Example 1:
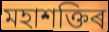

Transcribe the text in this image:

মহাশক্তিৰ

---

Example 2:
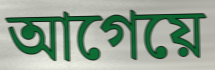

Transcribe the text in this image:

আগেয়ে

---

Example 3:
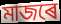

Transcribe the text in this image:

মাজৰে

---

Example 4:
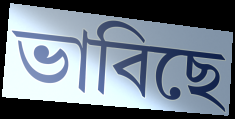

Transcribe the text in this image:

ভাবিছে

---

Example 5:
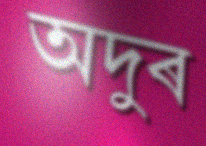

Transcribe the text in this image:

অদুৰ